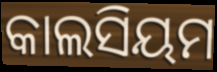
କାଲସିୟମ